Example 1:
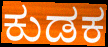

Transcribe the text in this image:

ಕುಡಕ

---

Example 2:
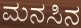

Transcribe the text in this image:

ಮನಸಿನ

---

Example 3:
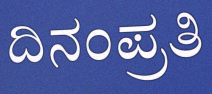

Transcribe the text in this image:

ದಿನಂಪ್ರತಿ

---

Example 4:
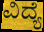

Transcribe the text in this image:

ವಿದ್ಯೆ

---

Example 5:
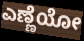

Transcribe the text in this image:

ಎಣ್ಣೆಯೋ